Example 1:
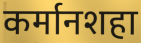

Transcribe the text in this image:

कर्मानशहा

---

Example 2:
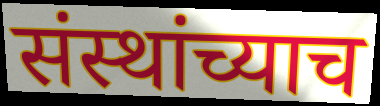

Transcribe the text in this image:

संस्थांच्याच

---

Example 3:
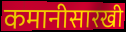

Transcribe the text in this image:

कमानीसारखी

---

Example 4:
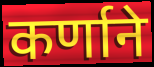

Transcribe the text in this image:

कर्णाने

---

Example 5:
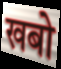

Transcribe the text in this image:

खबो